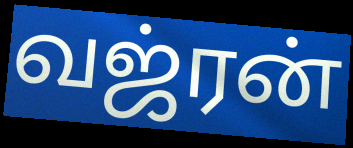
வஜ்ரன்